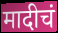
मादीचं